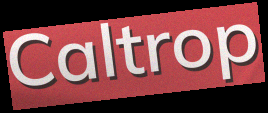
Caltrop